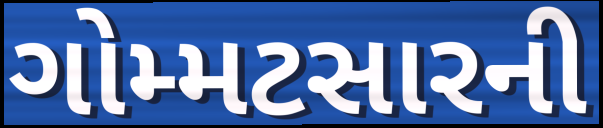
ગોમ્મટસારની